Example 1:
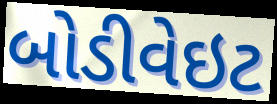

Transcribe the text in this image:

બોડીવેઇટ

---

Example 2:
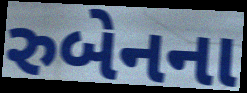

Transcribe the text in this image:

રુબેનના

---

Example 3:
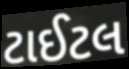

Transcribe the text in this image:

ટાઈટલ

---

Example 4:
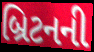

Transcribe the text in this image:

બ્રિટનની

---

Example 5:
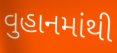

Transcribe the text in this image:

વુહાનમાંથી